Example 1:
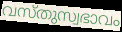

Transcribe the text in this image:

വസ്തുസ്വഭാവം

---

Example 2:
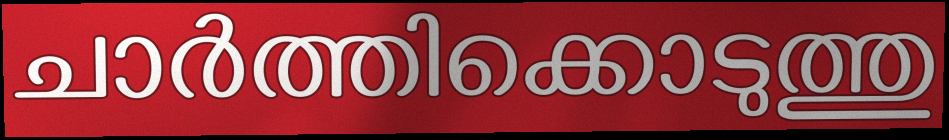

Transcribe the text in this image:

ചാർത്തിക്കൊടുത്തു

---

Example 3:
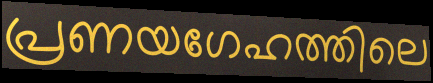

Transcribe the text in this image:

പ്രണയഗേഹത്തിലെ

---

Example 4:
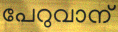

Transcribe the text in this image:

പേറുവാന്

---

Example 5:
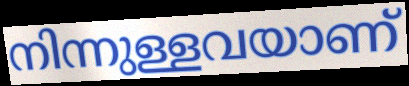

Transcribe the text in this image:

നിന്നുള്ളവയാണ്